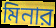
মিনার